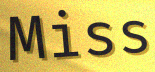
Miss